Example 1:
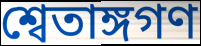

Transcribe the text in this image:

শ্বেতাঙ্গগণ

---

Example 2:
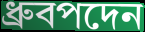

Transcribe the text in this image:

ধ্রুবপদেন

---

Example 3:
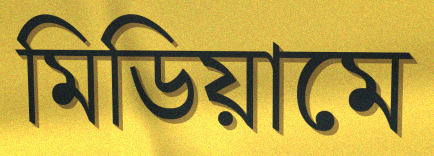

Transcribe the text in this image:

মিডিয়ামে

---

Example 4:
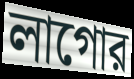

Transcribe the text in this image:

লাগোর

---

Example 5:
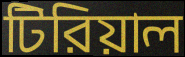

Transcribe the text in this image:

টিরিয়াল